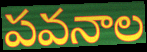
పవనాల